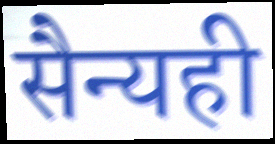
सैन्यही